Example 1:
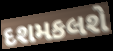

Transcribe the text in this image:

દશમકલશે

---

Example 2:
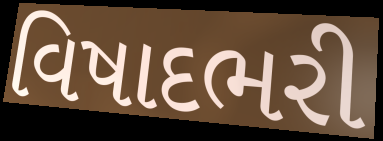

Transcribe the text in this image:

વિષાદભરી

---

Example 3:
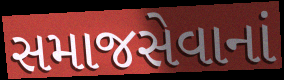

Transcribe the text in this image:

સમાજસેવાનાં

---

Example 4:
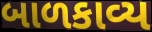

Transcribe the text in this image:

બાળકાવ્ય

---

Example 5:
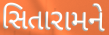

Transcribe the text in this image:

સિતારામને